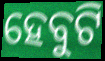
ହେବୁଟି